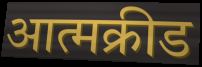
आत्मक्रीड